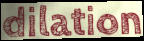
dilation